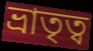
ভ্রাতৃত্ব